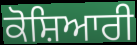
ਕੋਸ਼ਿਆਰੀ